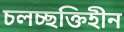
চলচ্ছক্তিহীন